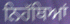
ਨਿਹੱਥਿਆਂ